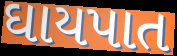
ઘાયપાત